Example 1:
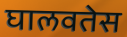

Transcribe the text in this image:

घालवतेस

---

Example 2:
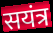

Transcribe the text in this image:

सयंत्र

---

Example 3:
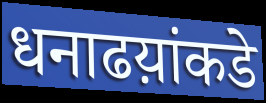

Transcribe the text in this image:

धनाढय़ांकडे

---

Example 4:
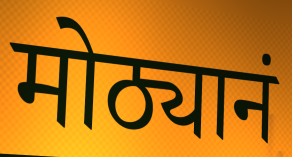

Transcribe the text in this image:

मोठ्यानं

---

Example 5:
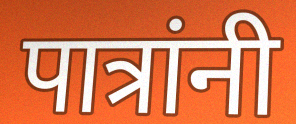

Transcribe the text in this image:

पात्रांनी